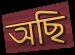
অছি